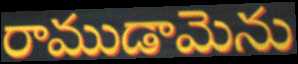
రాముడామెను